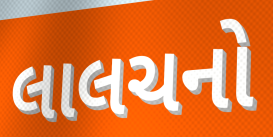
લાલચનો